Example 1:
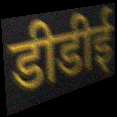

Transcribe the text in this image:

डीडीई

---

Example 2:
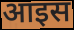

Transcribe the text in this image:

आइस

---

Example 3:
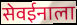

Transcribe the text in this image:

सेवईनाला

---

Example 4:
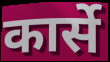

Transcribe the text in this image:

कार्से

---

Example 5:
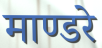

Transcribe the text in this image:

माण्डरे